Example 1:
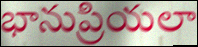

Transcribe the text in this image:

భానుప్రియలా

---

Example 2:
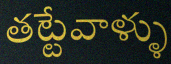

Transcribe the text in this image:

తట్టేవాళ్ళు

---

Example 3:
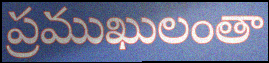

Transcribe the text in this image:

ప్రముఖులంతా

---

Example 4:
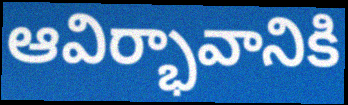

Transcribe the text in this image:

ఆవిర్భావానికి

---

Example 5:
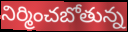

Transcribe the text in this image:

నిర్మించబోతున్న